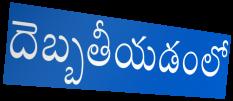
దెబ్బతీయడంలో